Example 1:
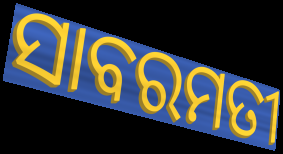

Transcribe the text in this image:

ସାବରମତୀ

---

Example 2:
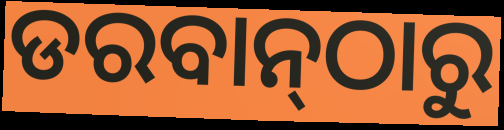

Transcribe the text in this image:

ଡରବାନ୍‌ଠାରୁ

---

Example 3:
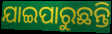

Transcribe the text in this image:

ଯାଇପାରୁଛନ୍ତି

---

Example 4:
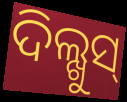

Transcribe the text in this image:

ଦିଲ୍ଖୁସ୍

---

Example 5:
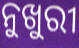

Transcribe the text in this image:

ନୁଖୁରୀ